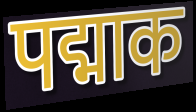
पद्माक